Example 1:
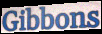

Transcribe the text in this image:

Gibbons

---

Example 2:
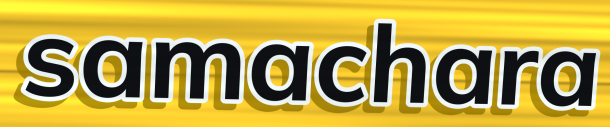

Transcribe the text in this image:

samachara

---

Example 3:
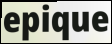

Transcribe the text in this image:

epique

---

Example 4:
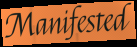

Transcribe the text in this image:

Manifested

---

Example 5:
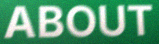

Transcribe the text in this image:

ABOUT